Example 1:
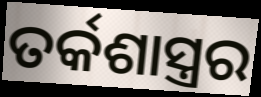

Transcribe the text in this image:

ତର୍କଶାସ୍ତ୍ରର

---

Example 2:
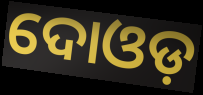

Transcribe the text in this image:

ଦୋଓଡ଼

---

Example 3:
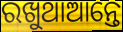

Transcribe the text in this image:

ରଖୁଥାଆନ୍ତେ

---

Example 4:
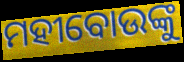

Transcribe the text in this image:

ମହୀବୋଉଙ୍କୁ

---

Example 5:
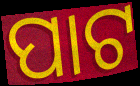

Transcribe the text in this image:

ପାଟ